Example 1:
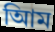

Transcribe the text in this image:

আিম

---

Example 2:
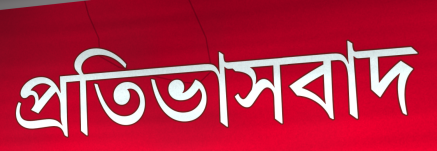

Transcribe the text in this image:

প্রতিভাসবাদ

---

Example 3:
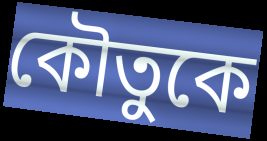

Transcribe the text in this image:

কৌতুকে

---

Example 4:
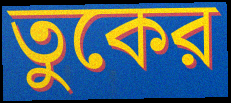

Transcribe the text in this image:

তুকের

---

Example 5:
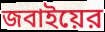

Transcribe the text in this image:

জবাইয়ের